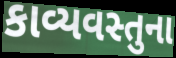
કાવ્યવસ્તુના